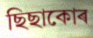
ছিছাকোৰ